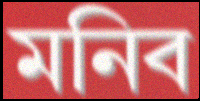
মনিব